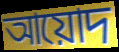
আয়োদ